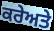
ਕਰੇਅਤੇ